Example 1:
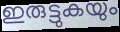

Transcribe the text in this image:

ഇരുട്ടുകയും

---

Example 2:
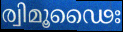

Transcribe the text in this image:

ര്വിമൂഢൈഃ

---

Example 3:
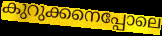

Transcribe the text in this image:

കുറുക്കനെപ്പോലെ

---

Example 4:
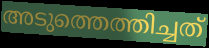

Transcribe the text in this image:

അടുത്തെത്തിച്ചത്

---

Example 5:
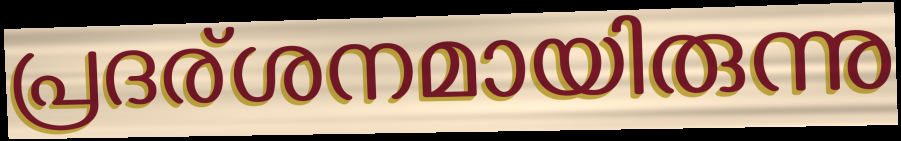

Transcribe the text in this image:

പ്രദര്ശനമായിരുന്നു